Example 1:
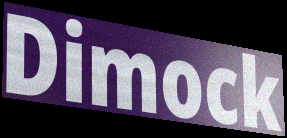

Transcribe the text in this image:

Dimock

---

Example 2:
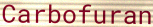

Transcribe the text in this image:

Carbofuran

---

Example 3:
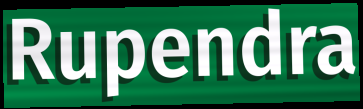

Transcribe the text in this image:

Rupendra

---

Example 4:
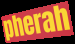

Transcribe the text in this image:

pherah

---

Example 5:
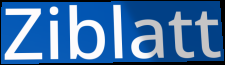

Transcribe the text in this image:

Ziblatt